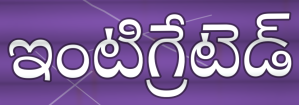
ఇంటిగ్రేటెడ్